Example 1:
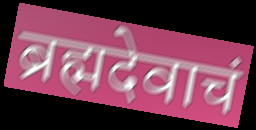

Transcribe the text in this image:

ब्रह्मदेवाचं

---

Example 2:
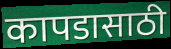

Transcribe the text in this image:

कापडासाठी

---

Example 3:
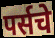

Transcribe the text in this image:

पर्सचे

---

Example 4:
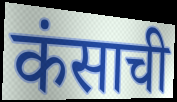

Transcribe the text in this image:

कंसाची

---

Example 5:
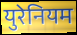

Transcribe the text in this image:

युरेनियम